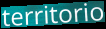
territorio